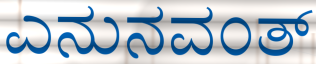
ಎನುನವಂತ್